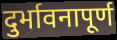
दुर्भावनापूर्ण